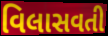
વિલાસવતી